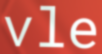
vle